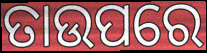
ତାଉପରେ